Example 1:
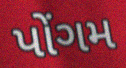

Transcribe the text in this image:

પોંગમ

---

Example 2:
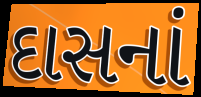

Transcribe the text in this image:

દાસનાં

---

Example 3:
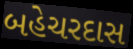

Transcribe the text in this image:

બહેચરદાસ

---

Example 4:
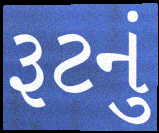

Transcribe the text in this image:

રૂટનું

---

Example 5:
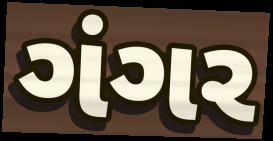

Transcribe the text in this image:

ગંગર